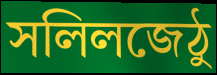
সলিলজেঠু